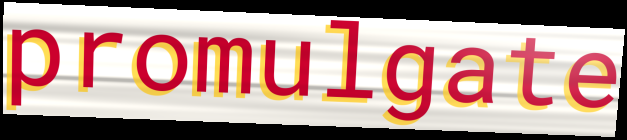
promulgate